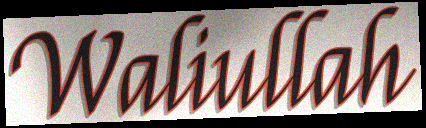
Waliullah